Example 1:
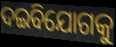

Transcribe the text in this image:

ଦଇବିଯୋଗକୁ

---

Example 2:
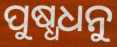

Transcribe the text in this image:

ପୁଷ୍ଧଧନୁ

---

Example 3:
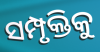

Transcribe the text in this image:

ସମ୍ପୃକ୍ତିକୁ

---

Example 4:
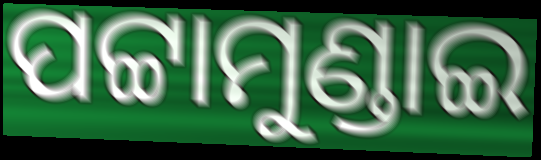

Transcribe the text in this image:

ପଟ୍ଟାମୁଣ୍ଡାଇ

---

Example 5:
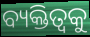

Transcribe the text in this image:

ବ୍ୟକ୍ତିତ୍ୱକୁ